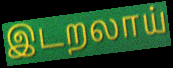
இடறலாய்